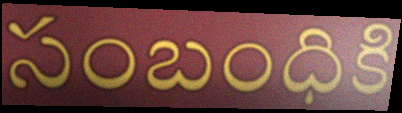
సంబంధికి